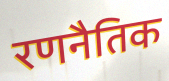
रणनैतिक